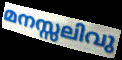
മനസ്സലിവു